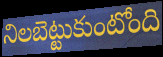
నిలబెట్టుకుంటోంది